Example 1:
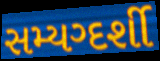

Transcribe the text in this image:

સમ્યગ્દર્શી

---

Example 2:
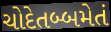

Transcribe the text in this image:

ચોદેતબ્બમેતં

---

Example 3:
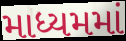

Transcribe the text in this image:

માધ્યમમાં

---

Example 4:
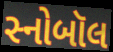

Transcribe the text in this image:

સ્નોબૉલ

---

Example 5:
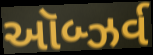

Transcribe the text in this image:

ઑબ્ઝર્વ